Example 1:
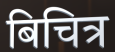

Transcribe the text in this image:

बिचित्र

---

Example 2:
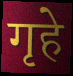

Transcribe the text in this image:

गृहे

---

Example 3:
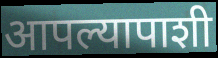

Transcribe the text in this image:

आपल्यापाशी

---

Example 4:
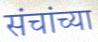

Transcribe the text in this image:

संचांच्या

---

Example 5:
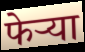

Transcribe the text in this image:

फेऱ्या